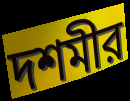
দশমীর